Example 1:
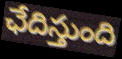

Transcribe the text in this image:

ఛేదిస్తుంది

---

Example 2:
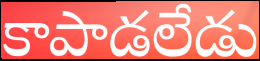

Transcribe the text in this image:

కాపాడలేడు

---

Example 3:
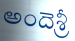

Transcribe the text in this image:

అందెశ్రీ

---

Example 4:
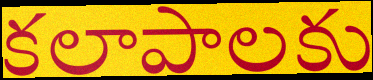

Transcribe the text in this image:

కలాపాలకు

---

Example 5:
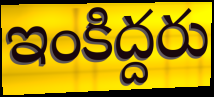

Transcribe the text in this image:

ఇంకిద్దరు